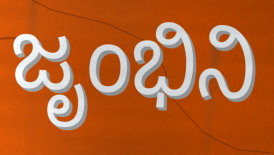
ಜೃಂಭಿನಿ